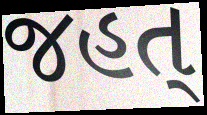
જહત્